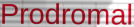
Prodromal